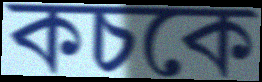
কচকে